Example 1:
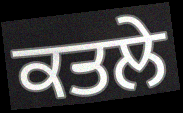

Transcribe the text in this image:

ਕਤਲੇ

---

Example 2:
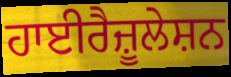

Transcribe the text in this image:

ਹਾਈਰੈਜ਼ੂਲੇਸ਼ਨ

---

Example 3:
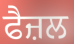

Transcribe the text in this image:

ਫੈਜ਼ਲ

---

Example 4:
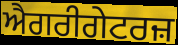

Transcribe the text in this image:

ਐਗਰੀਗੇਟਰਜ਼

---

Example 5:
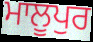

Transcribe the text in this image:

ਮਾਲੂਪੁਰ